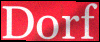
Dorf